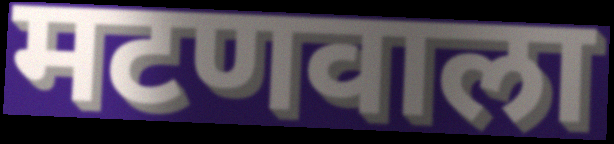
मटणवाला